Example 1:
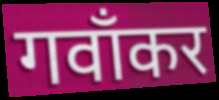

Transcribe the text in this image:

गवाँकर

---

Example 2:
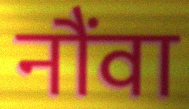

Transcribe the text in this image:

नौंवा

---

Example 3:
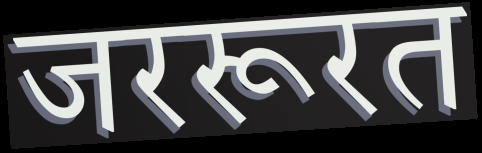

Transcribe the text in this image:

जररूरत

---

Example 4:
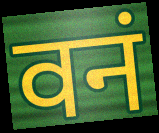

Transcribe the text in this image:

वनं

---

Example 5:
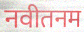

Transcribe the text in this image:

नवीतनम